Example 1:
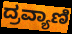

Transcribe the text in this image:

ದ್ರವ್ಯಾಣಿ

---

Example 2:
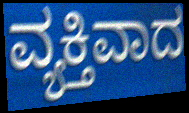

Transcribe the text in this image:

ವ್ಯಕ್ತಿವಾದ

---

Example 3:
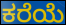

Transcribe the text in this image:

ಕರೆಯೆ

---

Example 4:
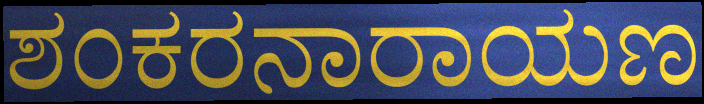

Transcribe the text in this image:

ಶಂಕರನಾರಾಯಣ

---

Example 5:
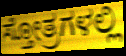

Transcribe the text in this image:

ಸ್ತೋತ್ರಗಳಲ್ಲಿ